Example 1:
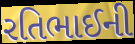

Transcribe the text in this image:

રતિભાઈની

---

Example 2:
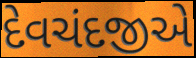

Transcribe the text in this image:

દેવચંદજીએ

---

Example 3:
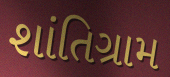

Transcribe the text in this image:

શાંતિગ્રામ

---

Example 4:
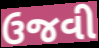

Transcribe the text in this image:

ઉજવી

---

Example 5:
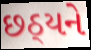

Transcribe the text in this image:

છઠ્યને